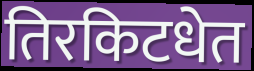
तिरकिटधेत